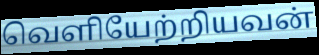
வெளியேற்றியவன்